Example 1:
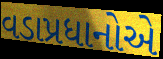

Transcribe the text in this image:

વડાપ્રધાનોએ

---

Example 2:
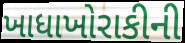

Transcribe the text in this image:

ખાધાખોરાકીની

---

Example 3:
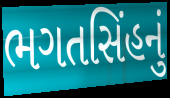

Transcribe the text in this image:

ભગતસિંહનું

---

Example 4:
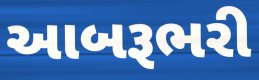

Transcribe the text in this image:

આબરૂભરી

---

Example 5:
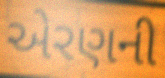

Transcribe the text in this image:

એરણની